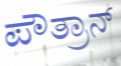
ಪೌತ್ರಾನ್